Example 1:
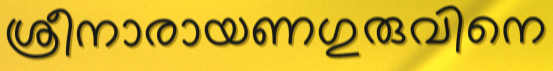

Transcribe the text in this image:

ശ്രീനാരായണഗുരുവിനെ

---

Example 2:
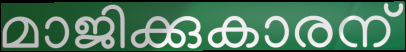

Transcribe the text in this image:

മാജിക്കുകാരന്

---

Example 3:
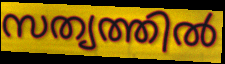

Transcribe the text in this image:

സത്യത്തിൽ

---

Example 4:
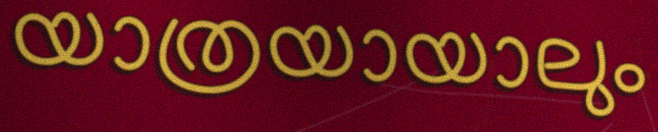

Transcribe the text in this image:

യാത്രയായാലും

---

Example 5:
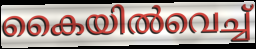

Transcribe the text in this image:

കൈയിൽവെച്ച്